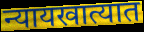
न्यायखात्यात